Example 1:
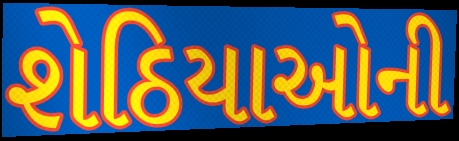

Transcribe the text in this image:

શેઠિયાઓની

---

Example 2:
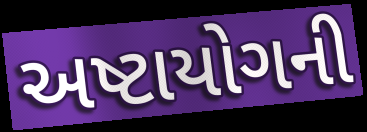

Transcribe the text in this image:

અષ્ટાયોગની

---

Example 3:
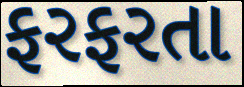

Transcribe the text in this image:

ફરફરતા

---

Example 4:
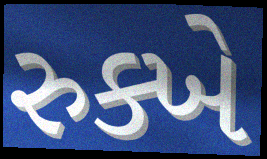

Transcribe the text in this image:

રુક્ખે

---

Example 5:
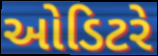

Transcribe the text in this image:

ઓડિટરે